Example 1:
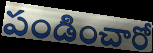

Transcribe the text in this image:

పండించారో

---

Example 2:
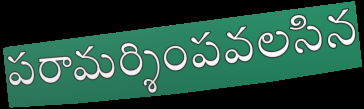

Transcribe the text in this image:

పరామర్శింపవలసిన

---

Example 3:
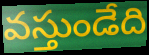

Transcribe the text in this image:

వస్తుండేది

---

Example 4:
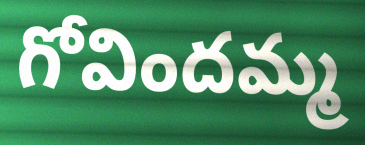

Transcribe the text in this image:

గోవిందమ్మ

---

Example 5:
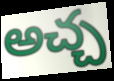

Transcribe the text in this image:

అచ్చ